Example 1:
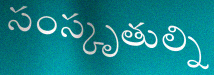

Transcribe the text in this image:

సంస్కృతుల్ని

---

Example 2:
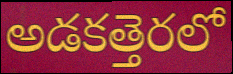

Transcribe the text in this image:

అడకత్తెరలో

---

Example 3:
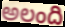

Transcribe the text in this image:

అలంది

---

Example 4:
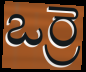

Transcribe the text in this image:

ఒర్రె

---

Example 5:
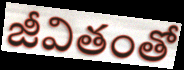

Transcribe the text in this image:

జీవితంతో